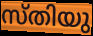
സ്തിയു